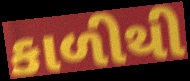
કાળીથી